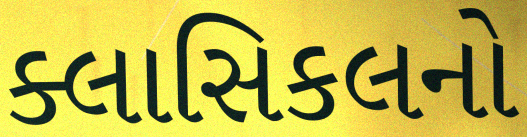
ક્લાસિકલનો